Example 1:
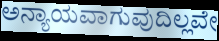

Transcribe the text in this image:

ಅನ್ಯಾಯವಾಗುವುದಿಲ್ಲವೇ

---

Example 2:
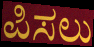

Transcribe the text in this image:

ಪಿಸಲು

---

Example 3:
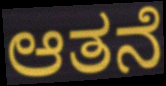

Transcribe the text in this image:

ಆತನೆ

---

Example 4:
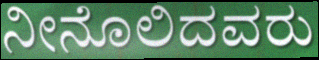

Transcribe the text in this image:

ನೀನೊಲಿದವರು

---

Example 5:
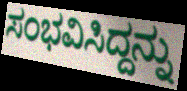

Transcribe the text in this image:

ಸಂಭವಿಸಿದ್ದನ್ನು